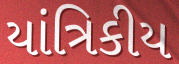
યાંત્રિકીય